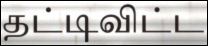
தட்டிவிட்ட